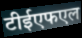
टीईएफएल